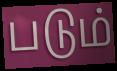
படும்